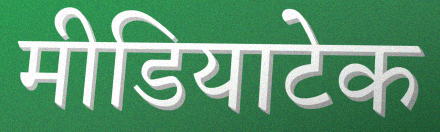
मीडियाटेक